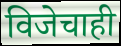
विजेचाही